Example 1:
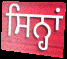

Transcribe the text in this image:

ਸਿਨ੍ਹਾਂ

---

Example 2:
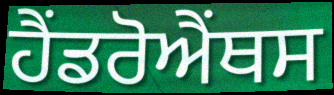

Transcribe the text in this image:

ਹੈਂਡਰੋਐਂਥਸ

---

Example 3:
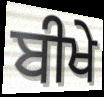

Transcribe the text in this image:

ਬੀਖੇ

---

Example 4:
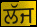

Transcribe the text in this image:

ਲੱਜ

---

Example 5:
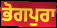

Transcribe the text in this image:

ਭੋਗਪੁਰਾ